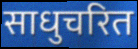
साधुचरित